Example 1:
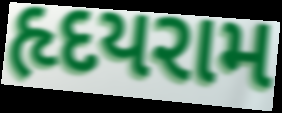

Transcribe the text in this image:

હૃદયરામ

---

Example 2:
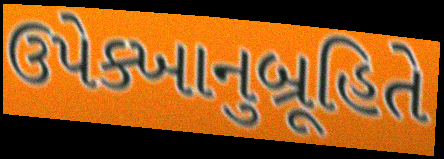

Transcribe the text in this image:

ઉપેક્ખાનુબ્રૂહિતે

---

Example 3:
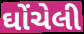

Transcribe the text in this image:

ઘોંચેલી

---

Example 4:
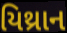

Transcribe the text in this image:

યિથ્રાન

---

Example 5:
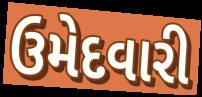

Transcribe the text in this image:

ઉમેદવારી